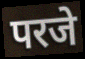
परजे